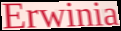
Erwinia